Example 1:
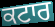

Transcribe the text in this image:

ਕਟਾਰ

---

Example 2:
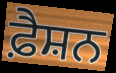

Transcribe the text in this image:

ਫ਼ੈਸ਼ਨ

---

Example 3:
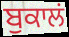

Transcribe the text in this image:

ਬੁਕਾਲਂ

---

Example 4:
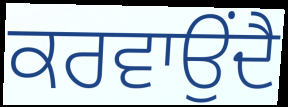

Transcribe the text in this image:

ਕਰਵਾਉਂਦੈ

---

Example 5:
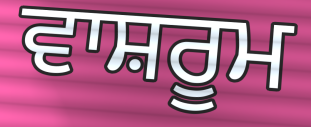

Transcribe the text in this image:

ਵਾਸ਼ਰੂਮ